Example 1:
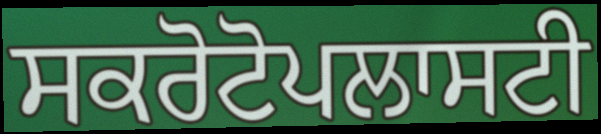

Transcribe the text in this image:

ਸਕਰੋਟੋਪਲਾਸਟੀ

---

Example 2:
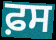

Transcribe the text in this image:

ਫ਼ਸ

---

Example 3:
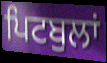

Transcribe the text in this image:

ਪਿਟਬੁਲਾਂ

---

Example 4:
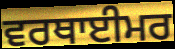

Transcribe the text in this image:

ਵਰਥਾਈਮਰ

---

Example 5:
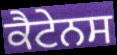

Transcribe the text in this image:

ਕੈਟੇਨਸ